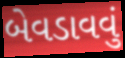
બેવડાવવું